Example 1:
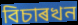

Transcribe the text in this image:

বিচাৰখন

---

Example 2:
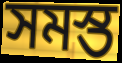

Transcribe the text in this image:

সমস্ত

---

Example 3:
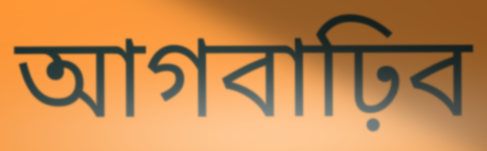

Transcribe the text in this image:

আগবাঢ়িব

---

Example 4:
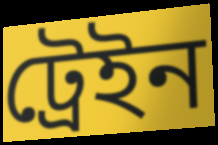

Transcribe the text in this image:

ট্ৰেইন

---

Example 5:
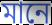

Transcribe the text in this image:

মানে